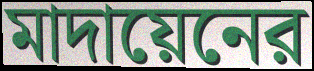
মাদায়েনের